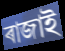
ৰাজাই